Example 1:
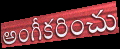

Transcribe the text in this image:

అంగీకరించు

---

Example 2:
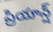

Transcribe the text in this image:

ప్రియాన్ష్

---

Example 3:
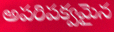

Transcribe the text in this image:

అపరిపక్వమైన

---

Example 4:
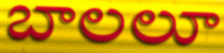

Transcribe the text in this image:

బాలలూ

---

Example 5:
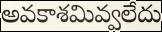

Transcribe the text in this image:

అవకాశమివ్వలేదు